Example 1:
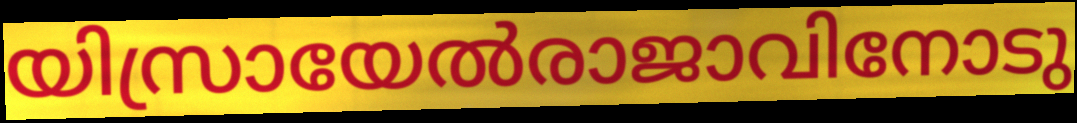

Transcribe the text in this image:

യിസ്രായേൽരാജാവിനോടു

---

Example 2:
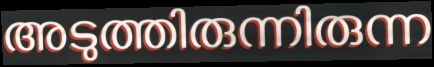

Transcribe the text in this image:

അടുത്തിരുന്നിരുന്ന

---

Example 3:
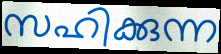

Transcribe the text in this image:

സഹിക്കുന്ന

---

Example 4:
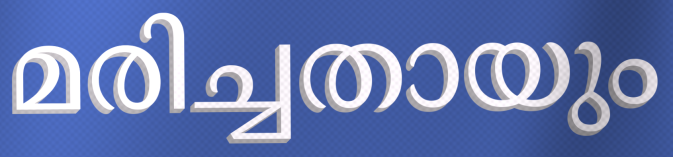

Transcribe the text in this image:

മരിച്ചതായും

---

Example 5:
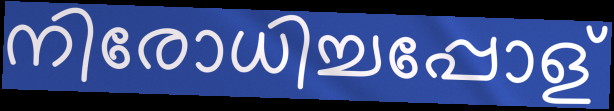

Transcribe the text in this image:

നിരോധിച്ചപ്പോള്